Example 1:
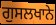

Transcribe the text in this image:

ਗੁਸਲਖਾਨੇ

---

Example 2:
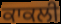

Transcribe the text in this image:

ਕਾਕਲੀ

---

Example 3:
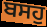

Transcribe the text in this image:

ਬਸਹੁ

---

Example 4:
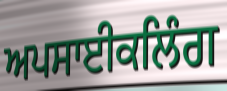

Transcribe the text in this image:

ਅਪਸਾਈਕਲਿੰਗ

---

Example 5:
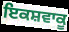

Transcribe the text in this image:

ਇਕਸ਼ਵਾਕੂ